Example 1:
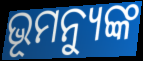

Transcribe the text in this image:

ଭୂମନ୍ୟୁଙ୍କ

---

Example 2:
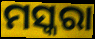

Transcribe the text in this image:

ମସ୍କରା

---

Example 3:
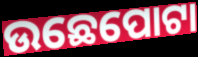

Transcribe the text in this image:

ଉଛେପୋଟା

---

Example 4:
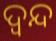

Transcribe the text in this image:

ଦ୍ବନ୍ଦ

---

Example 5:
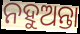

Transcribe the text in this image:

ନହୁଅନ୍ତା